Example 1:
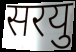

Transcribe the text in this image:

सरयु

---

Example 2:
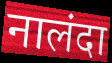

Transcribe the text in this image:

नालंदा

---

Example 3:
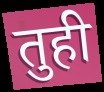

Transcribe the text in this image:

तुही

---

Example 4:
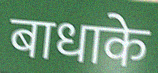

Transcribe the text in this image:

बाधाके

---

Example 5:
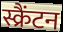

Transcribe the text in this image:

स्क्रैंटन